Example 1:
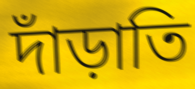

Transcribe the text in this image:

দাঁড়াতি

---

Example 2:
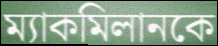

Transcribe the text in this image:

ম্যাকমিলানকে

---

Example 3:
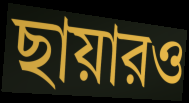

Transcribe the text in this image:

ছায়ারও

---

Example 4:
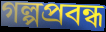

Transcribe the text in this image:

গল্পপ্রবন্ধ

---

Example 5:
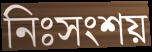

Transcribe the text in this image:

নিঃসংশয়